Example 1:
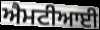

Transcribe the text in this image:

ਐਮਟੀਆਈ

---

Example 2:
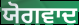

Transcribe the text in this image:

ਯੋਗਵਾਦ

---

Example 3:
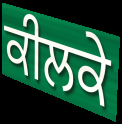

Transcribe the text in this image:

ਕੀਲਕੇ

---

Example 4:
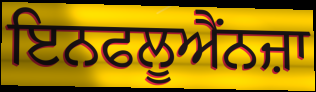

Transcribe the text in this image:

ਇਨਫਲੂਐਂਨਜ਼ਾ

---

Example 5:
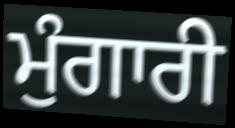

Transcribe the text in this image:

ਮੁੰਗਾਰੀ